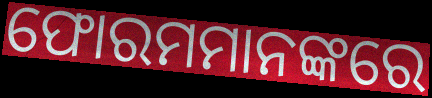
ଫୋରମମାନଙ୍କରେ